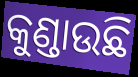
କୁଣ୍ଡାଉଛି